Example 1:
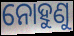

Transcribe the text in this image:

ନୋହୁଣୁ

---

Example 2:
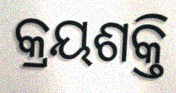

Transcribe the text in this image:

କ୍ରୟଶକ୍ତି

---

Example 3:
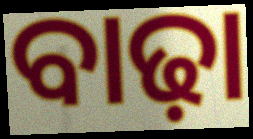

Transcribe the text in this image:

ବାଢ଼ା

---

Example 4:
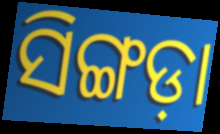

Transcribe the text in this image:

ସିଙ୍ଗଡ଼ା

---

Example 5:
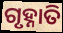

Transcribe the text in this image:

ଗୃହ୍ନାତି